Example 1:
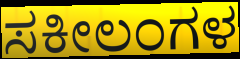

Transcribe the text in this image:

ಸಕೀಲಂಗಳ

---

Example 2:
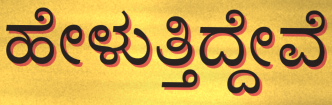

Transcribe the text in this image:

ಹೇಳುತ್ತಿದ್ದೇವೆ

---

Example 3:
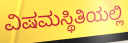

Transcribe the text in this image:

ವಿಷಮಸ್ಥಿತಿಯಲ್ಲಿ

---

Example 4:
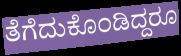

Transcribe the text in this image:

ತೆಗೆದುಕೊಂಡಿದ್ದರೂ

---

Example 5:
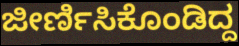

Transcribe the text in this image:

ಜೀರ್ಣಿಸಿಕೊಂಡಿದ್ದ